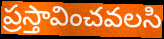
ప్రస్తావించవలసి